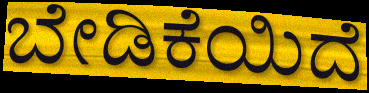
ಬೇಡಿಕೆಯಿದೆ